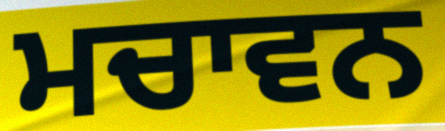
ਮਚਾਵਨ